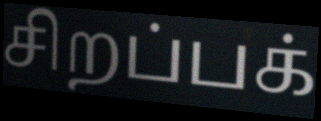
சிறப்பக்